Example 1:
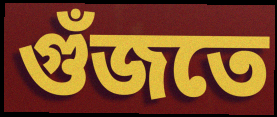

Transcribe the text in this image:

গুঁজতে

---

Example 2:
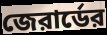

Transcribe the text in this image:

জেরার্ডের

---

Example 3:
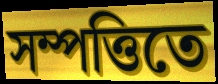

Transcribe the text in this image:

সম্পত্তিতে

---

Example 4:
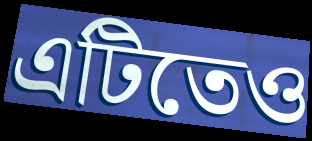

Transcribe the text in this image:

এটিতেও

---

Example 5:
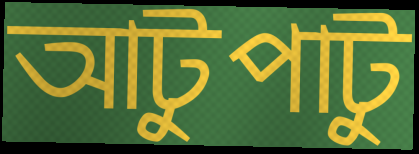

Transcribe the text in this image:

আটুপাটু